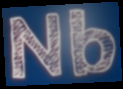
Nb